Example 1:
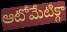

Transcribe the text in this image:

ఆటోమేటిక్గా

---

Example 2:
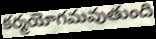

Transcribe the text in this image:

కర్మయోగమవుతుంది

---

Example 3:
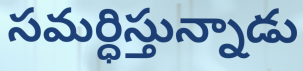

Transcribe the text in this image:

సమర్ధిస్తున్నాడు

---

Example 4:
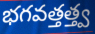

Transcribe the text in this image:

భగవత్తత్త్వ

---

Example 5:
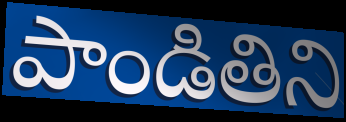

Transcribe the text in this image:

పాండితిని